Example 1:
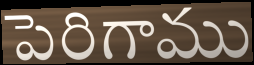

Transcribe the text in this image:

పెరిగాము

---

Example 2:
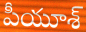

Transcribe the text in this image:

పీయూశ్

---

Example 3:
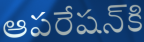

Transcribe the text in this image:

ఆపరేషన్‌కి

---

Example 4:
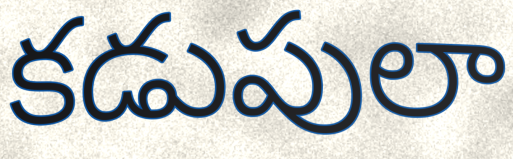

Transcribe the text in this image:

కడుపులా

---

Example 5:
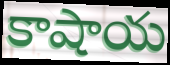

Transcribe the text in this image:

కాషాయ